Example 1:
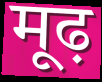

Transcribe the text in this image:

मूढ़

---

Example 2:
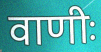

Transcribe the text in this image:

वाणीः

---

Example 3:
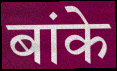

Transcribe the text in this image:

बांके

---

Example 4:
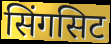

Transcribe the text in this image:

सिंगसिट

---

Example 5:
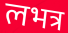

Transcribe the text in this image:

लभत्र